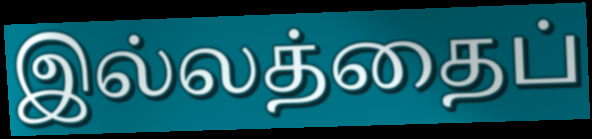
இல்லத்தைப்